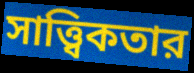
সাত্ত্বিকতার